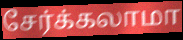
சேர்க்கலாமா